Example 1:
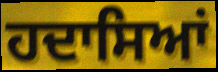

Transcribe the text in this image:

ਹਦਾਸਿਆਂ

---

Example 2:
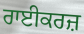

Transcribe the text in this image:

ਰਾਈਕਰਜ਼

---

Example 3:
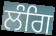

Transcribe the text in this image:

ਲੰਗਿ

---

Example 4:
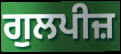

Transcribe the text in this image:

ਗੁਲਪੀਜ਼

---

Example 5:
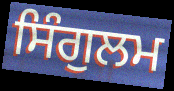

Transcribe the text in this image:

ਸਿੰਗੁਲਮ